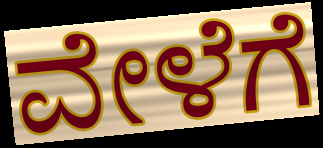
ವೇಳೆಗೆ